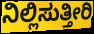
ನಿಲ್ಲಿಸುತ್ತೀರಿ